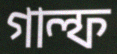
গাল্ফ